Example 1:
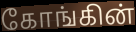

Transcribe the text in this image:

கோங்கின்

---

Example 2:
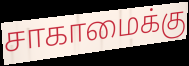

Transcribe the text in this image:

சாகாமைக்கு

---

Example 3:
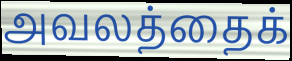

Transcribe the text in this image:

அவலத்தைக்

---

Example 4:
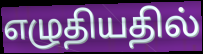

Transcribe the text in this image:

எழுதியதில்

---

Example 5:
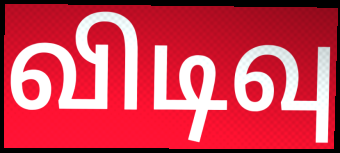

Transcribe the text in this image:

விடிவு